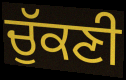
ਚੁੱਕਣੀ